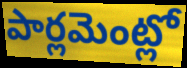
పార్లమెంట్లో